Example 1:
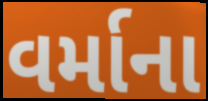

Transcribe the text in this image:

વર્માના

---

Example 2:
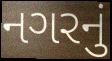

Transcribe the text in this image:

નગરનું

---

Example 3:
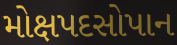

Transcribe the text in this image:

મોક્ષપદસોપાન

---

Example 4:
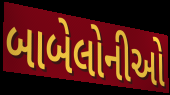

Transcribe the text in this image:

બાબેલોનીઓ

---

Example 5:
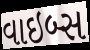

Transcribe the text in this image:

વાઇબ્સ